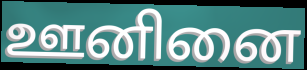
ஊனினை